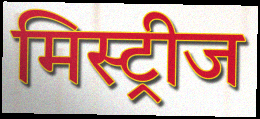
मिस्ट्रीज